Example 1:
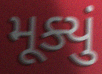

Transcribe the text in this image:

મૂક્યું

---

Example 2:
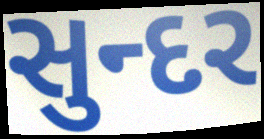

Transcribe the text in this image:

સુન્દર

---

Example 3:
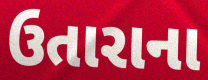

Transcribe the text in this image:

ઉતારાના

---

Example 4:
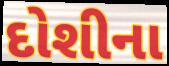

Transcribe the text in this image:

દોશીના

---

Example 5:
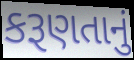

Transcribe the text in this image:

કરૂણતાનું